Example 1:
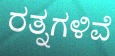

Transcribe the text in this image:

ರತ್ನಗಳಿವೆ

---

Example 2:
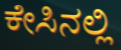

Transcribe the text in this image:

ಕೇಸಿನಲ್ಲಿ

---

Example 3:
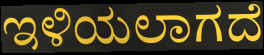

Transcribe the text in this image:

ಇಳಿಯಲಾಗದೆ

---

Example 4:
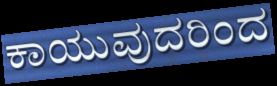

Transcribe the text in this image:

ಕಾಯುವುದರಿಂದ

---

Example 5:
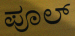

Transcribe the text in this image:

ಪೂಲ್